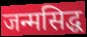
जन्मसिद्ध